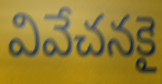
వివేచనకై